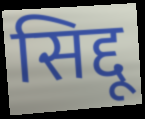
सिद्दू